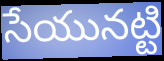
సేయునట్టి